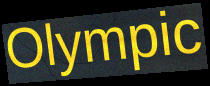
Olympic